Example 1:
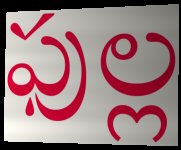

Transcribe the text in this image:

ఫుల్ల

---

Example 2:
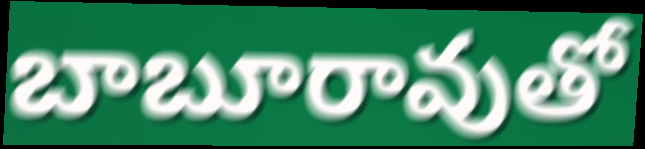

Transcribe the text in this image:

బాబూరావుతో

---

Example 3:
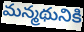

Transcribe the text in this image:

మన్మథునికి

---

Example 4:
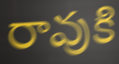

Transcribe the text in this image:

రావుకి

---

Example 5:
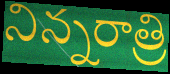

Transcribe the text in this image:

నిన్నరాత్రి